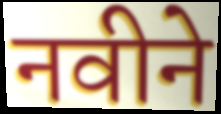
नवीने